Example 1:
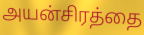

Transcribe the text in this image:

அயன்சிரத்தை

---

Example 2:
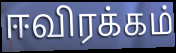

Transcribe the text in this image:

ஈவிரக்கம்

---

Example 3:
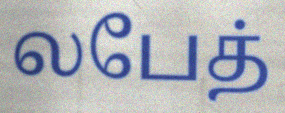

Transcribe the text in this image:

லபேத்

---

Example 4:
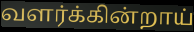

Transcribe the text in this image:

வளர்க்கின்றாய்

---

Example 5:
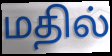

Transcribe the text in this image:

மதில்